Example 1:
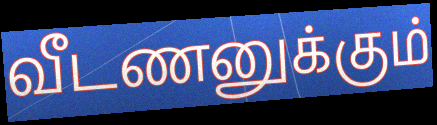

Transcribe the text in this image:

வீடணனுக்கும்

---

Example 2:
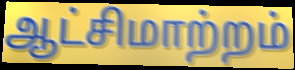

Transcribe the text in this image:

ஆட்சிமாற்றம்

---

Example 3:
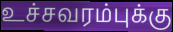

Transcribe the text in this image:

உச்சவரம்புக்கு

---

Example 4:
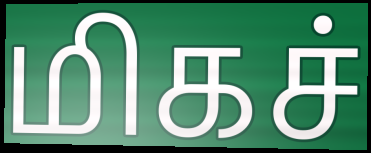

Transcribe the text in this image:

மிகச்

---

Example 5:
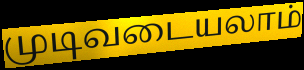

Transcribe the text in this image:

முடிவடையலாம்